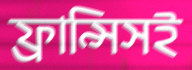
ফ্রান্সিসই